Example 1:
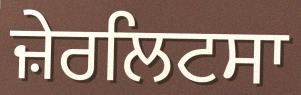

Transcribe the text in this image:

ਜ਼ੇਰਲਿਟਸਾ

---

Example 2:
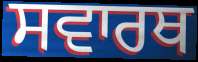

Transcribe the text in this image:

ਸਵਾਰਥ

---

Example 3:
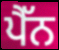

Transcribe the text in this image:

ਪੈੱਨ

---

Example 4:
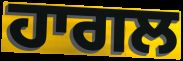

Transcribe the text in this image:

ਹਾਗਲ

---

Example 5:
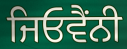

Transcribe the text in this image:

ਜਿਓਵੈਂਨੀ